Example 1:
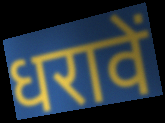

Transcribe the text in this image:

धरावें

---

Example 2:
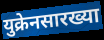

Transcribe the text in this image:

युक्रेनसारख्या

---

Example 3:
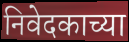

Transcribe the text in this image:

निवेदकाच्या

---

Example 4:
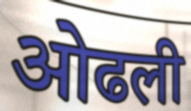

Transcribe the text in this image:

ओढली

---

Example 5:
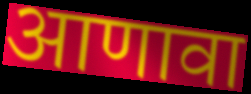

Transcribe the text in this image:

आणावा